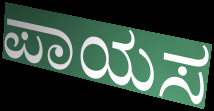
ಪಾಯಸ